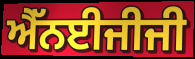
ਐੱਨਈਜੀਜੀ